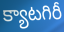
క్యాటగిరీ